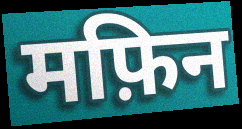
मफ़िन